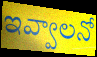
ఇవ్వాలనో